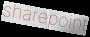
sharepoint